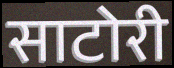
साटोरी